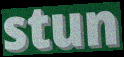
stun